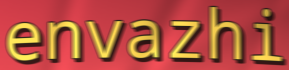
envazhi